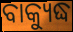
ବାକ୍ଯୁଦ୍ଧ